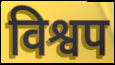
विश्वप